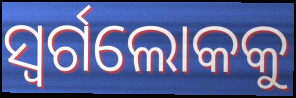
ସ୍ବର୍ଗଲୋକକୁ